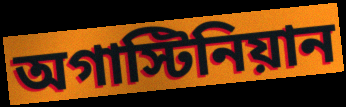
অগাস্টিনিয়ান